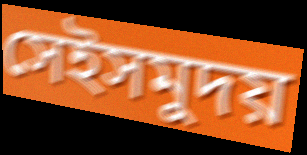
সেইসমুদয়